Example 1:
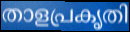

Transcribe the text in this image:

താളപ്രകൃതി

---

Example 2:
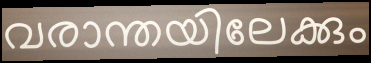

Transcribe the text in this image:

വരാന്തയിലേക്കും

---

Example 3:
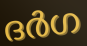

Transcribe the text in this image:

ദർഗ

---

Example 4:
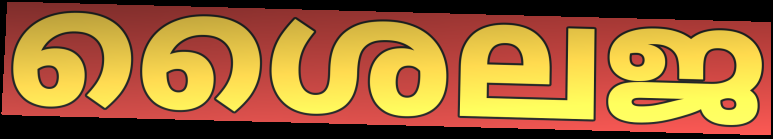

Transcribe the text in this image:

ശൈലജ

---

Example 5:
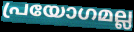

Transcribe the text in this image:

പ്രയോഗമല്ല